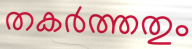
തകർത്തതും